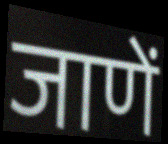
जाणें